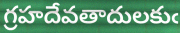
గ్రహదేవతాదులకుఁ